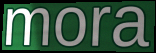
mora